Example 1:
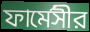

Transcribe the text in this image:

ফার্মেসীর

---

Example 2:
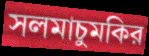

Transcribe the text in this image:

সলমাচুমকির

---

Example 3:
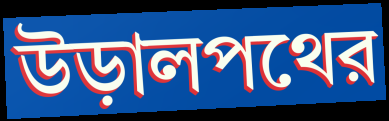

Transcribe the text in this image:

উড়ালপথের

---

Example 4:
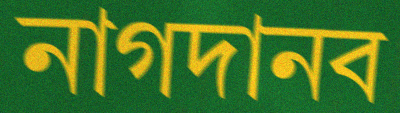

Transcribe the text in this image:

নাগদানব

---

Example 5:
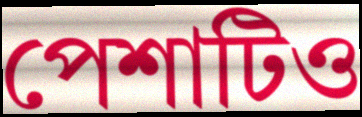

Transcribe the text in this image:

পেশাটিও